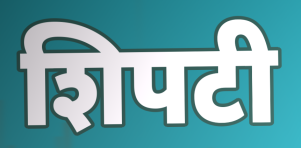
शिपटी